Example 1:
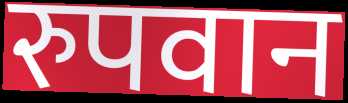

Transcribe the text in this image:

रुपवान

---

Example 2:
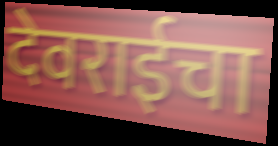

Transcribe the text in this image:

देवराईचा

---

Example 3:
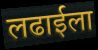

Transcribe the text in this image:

लढाईला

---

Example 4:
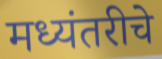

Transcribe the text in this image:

मध्यंतरीचे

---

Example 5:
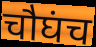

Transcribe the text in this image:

चौघंच